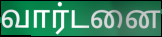
வார்டனை